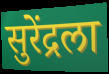
सुरेंद्रला